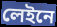
লেইনে